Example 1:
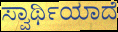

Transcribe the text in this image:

ಸ್ವಾರ್ಥಿಯಾದೆ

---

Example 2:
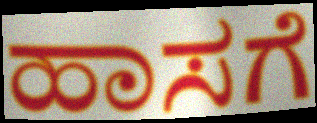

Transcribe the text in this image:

ಹಾಸಗೆ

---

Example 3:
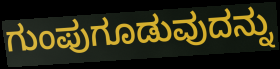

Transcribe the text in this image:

ಗುಂಪುಗೂಡುವುದನ್ನು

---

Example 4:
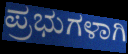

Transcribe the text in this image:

ಪ್ರಭುಗಳಾಗಿ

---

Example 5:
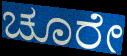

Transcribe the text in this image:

ಚೂರೇ